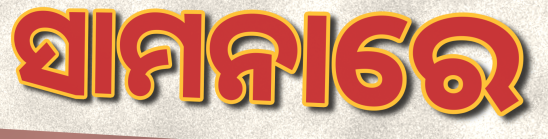
ସାମନାରେ